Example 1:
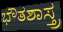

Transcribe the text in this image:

ಭೌತಶಾಸ್ತ್ರ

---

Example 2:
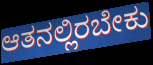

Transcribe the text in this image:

ಆತನಲ್ಲಿರಬೇಕು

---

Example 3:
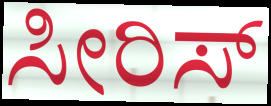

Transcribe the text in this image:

ಸೀರಿಸ್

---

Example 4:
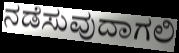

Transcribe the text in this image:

ನಡೆಸುವುದಾಗಲಿ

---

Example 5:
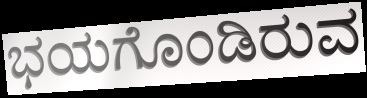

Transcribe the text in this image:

ಭಯಗೊಂಡಿರುವ